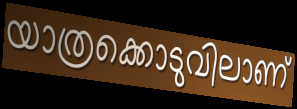
യാത്രക്കൊടുവിലാണ്